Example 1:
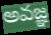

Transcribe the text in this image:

అవజ్ఞ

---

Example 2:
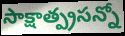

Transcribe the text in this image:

సాక్షాత్ప్రసన్నో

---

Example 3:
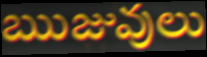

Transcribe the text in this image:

ఋజువులు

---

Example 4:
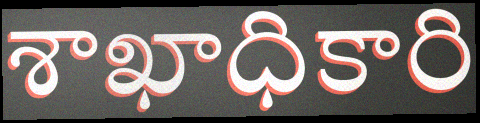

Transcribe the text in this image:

శాఖాధికారి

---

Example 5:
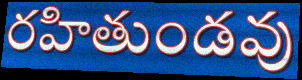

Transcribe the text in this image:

రహితుండవు